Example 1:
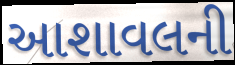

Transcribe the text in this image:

આશાવલની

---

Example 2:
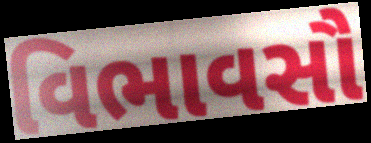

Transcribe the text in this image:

વિભાવસૌ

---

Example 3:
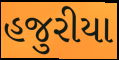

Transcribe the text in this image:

હજુરીયા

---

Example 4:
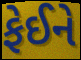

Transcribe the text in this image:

ફેઈને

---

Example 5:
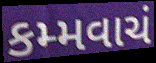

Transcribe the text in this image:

કમ્મવાચં